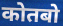
कोतबो